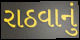
રાઠવાનું